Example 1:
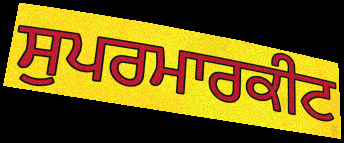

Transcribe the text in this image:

ਸੁਪਰਮਾਰਕੀਟ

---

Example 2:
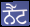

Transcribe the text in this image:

ਨੈੱਟ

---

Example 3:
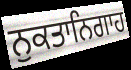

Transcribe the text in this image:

ਨੁਕਤਾਨਿਗਾਹ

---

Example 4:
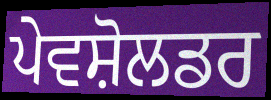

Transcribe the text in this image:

ਪੇਵਸ਼ੋਲਡਰ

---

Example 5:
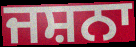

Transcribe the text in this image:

ਜਸ਼ਨਾ